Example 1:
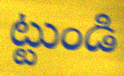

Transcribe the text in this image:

ట్టుండి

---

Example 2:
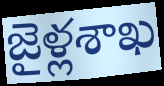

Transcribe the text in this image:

జైళ్లశాఖ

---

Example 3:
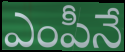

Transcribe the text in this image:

ఎంపీనే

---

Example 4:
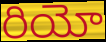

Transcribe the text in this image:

రియో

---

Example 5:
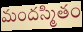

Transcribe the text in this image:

మందస్మితం